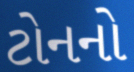
ટોનનો